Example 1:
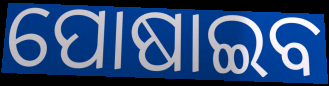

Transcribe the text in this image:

ପୋଷାଇବ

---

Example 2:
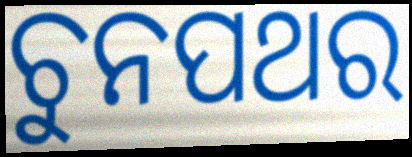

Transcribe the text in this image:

ଚୁନପଥର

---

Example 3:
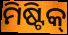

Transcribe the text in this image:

ମିଷ୍ଟିକ୍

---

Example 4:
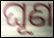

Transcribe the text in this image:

ଘୂଣ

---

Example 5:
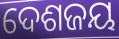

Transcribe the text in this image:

ଦେଶଜୟ